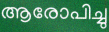
ആരോപിച്ചു